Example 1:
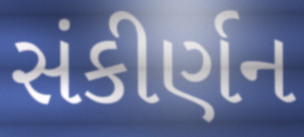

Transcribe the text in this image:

સંકીર્ણન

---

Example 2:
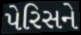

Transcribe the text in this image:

પેરિસને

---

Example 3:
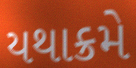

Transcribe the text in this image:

યથાક્રમે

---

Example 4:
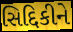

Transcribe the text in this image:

સિદ્દિકીને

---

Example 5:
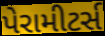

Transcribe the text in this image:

પેરામીટર્સ